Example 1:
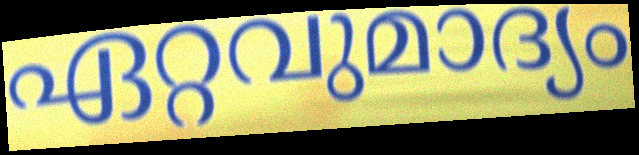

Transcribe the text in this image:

ഏറ്റവുമാദ്യം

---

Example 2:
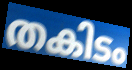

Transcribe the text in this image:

തകിടം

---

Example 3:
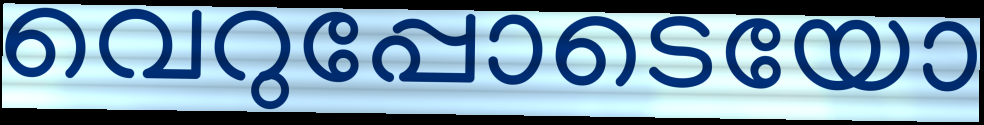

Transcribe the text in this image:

വെറുപ്പോടെയോ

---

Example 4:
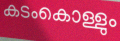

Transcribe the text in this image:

കടംകൊള്ളും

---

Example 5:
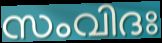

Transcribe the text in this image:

സംവിദഃ